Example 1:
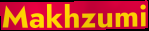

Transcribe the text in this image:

Makhzumi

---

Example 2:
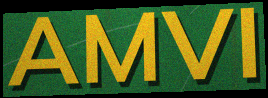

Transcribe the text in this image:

AMVI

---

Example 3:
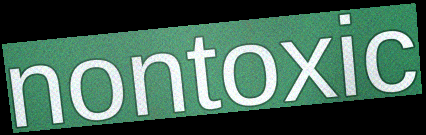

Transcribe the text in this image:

nontoxic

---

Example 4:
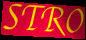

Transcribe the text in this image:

STRO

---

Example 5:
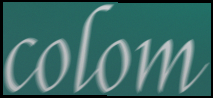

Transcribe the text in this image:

colom